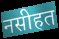
नसीहत